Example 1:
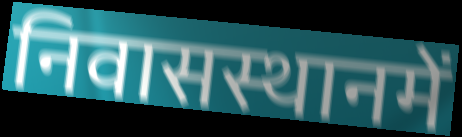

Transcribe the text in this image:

निवासस्थानमें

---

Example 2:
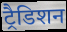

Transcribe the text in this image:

ट्रैडिशन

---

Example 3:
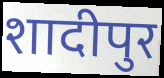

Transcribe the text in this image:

शादीपुर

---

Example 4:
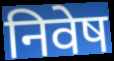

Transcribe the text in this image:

निवेष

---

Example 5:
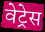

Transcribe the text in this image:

वेट्रेस